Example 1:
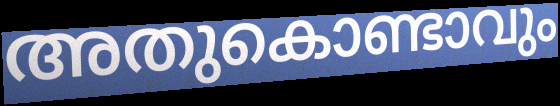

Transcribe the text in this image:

അതുകൊണ്ടാവും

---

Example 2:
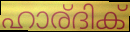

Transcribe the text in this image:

ഹാര്ദിക്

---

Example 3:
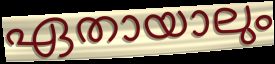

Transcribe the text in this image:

ഏതായാലും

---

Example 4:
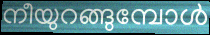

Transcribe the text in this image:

നീയുറങ്ങുമ്പോൾ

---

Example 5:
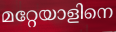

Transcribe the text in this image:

മറ്റേയാളിനെ